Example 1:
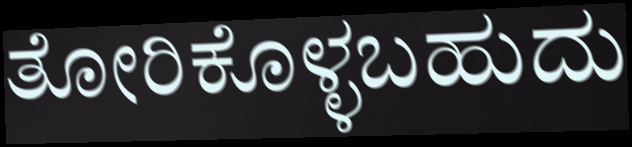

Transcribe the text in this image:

ತೋರಿಕೊಳ್ಳಬಹುದು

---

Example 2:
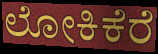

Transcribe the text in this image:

ಲೋಕಿಕೆರೆ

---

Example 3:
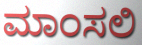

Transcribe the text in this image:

ಮಾಂಸಲಿ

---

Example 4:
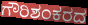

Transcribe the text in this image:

ಗೌರಿಶಂಕರದ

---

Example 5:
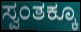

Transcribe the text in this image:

ಸ್ವಂತಕ್ಕೂ